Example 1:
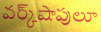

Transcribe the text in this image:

వర్క్‌షాపులూ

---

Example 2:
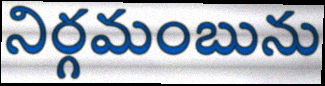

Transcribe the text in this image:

నిర్గమంబును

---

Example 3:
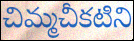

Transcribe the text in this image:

చిమ్మచీకటిని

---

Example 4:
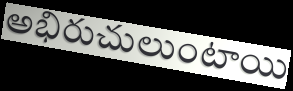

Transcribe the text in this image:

అభిరుచులుంటాయి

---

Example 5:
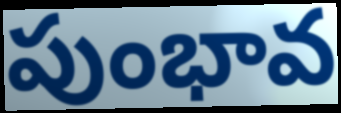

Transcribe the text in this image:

పుంభావ